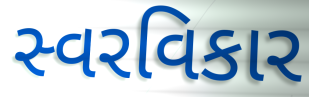
સ્વરવિકાર